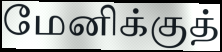
மேனிக்குத்